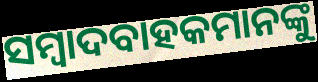
ସମ୍ବାଦବାହକମାନଙ୍କୁ